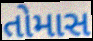
તોમાસ